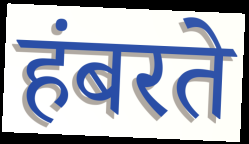
हंबरते